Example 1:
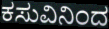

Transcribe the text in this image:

ಕಸುವಿನಿಂದ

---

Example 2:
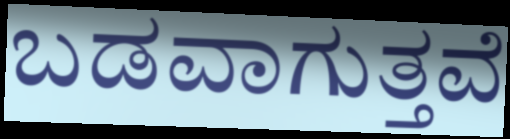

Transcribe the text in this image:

ಬಡವಾಗುತ್ತವೆ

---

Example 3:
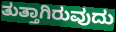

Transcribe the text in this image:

ತುತ್ತಾಗಿರುವುದು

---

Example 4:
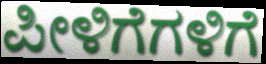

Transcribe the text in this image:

ಪೀಳಿಗೆಗಳಿಗೆ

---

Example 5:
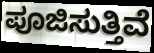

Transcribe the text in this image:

ಪೂಜಿಸುತ್ತಿವೆ